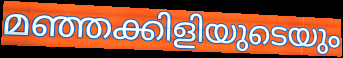
മഞ്ഞക്കിളിയുടെയും